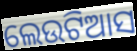
ଲେଉଟିଆସ